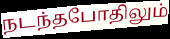
நடந்தபோதிலும்